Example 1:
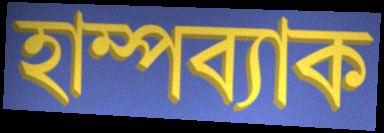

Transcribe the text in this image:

হাম্পব্যাক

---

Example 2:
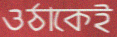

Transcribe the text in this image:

ওঠাকেই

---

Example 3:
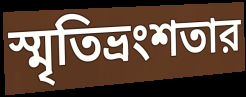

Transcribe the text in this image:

স্মৃতিভ্রংশতার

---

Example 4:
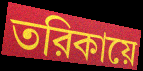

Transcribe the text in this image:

তরিকায়ে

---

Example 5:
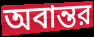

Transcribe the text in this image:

অবান্তর